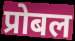
प्रोबल